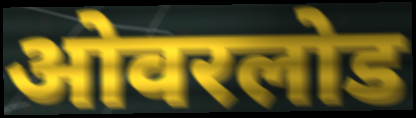
ओवरलोड